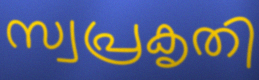
സ്വപ്രകൃതി